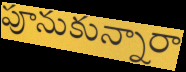
పూనుకున్నారా